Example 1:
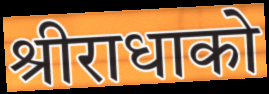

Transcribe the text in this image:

श्रीराधाको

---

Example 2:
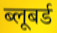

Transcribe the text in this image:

ब्लूबर्ड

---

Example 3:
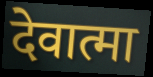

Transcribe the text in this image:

देवात्मा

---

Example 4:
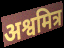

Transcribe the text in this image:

अश्वमित्र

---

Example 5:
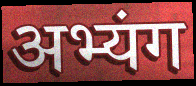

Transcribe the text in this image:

अभ्यंग